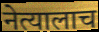
नेत्यालाच